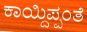
ಕಾಯ್ದಿಪ್ಪಂತೆ